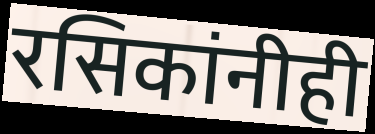
रसिकांनीही